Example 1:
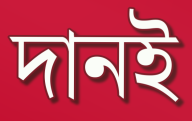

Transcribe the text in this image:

দানই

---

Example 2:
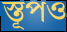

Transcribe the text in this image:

স্তূপও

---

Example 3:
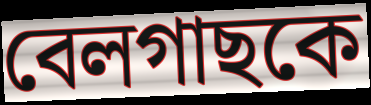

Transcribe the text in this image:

বেলগাছকে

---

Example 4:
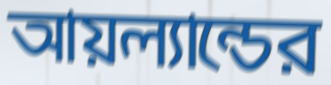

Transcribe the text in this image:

আয়ল্যান্ডের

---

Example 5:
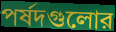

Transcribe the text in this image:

পর্ষদগুলোর